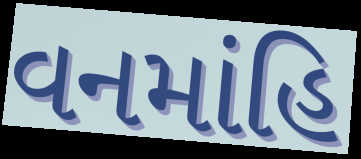
વનમાંહિ